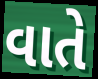
વાતે